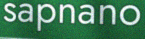
sapnano